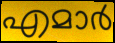
എമാർ